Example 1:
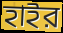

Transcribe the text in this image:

হাইর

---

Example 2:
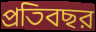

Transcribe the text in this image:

প্রতিবছর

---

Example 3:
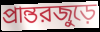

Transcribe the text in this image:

প্রান্তরজুড়ে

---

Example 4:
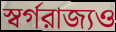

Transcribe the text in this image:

স্বর্গরাজ্যও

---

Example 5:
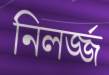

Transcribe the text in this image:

নিলর্জ্জ